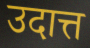
उदात्त